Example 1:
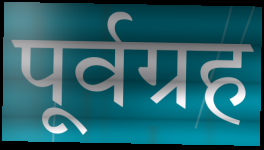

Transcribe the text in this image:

पूर्वग्रह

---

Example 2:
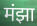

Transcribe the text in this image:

मंझा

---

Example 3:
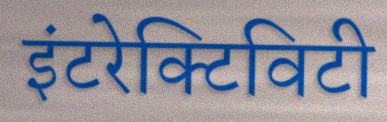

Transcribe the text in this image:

इंटरेक्टिविटी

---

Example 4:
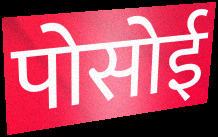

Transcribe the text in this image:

पोसोई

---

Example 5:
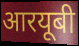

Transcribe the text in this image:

आरयूबी